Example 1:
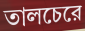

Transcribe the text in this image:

তালচেরে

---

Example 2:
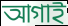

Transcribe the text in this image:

আগাই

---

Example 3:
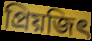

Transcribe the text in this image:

প্রিয়জিৎ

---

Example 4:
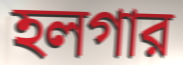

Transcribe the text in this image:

হলগার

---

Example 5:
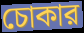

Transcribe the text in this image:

চোকার